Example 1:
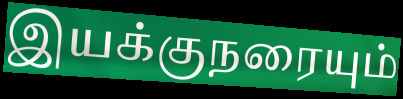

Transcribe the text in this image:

இயக்குநரையும்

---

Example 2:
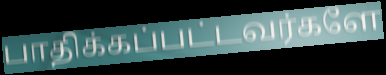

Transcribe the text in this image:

பாதிக்கப்பட்டவர்களே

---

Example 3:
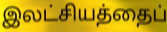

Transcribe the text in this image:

இலட்சியத்தைப்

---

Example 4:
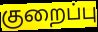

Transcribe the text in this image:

குறைப்பு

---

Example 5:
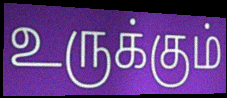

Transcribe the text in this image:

உருக்கும்